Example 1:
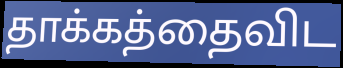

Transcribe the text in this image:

தாக்கத்தைவிட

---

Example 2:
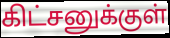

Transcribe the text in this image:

கிட்சனுக்குள்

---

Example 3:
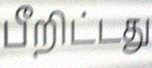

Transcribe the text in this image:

பீறிட்டது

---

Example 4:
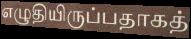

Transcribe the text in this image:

எழுதியிருப்பதாகத்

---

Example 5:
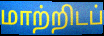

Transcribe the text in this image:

மாற்றிடப்